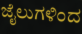
ಜೈಲುಗಳಿಂದ